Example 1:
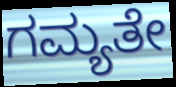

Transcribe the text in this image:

ಗಮ್ಯತೇ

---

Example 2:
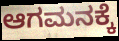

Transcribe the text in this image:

ಆಗಮನಕ್ಕೆ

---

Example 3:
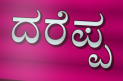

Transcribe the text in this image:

ದರೆಪ್ಪ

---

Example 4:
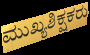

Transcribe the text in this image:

ಮುಖ್ಯಶಿಕ್ಷಕರು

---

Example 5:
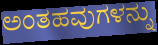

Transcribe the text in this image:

ಅಂತಹವುಗಳನ್ನು